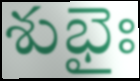
శుభైః